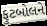
ફુટબોલને